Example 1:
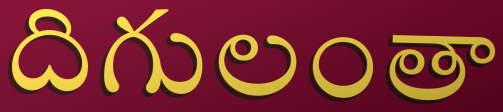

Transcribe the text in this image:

దిగులంతా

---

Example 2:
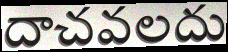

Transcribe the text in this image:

దాచవలదు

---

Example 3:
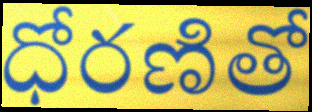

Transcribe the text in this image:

ధోరణితో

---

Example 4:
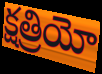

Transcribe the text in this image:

క్షత్రియో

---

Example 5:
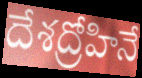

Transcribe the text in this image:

దేశద్రోహినే